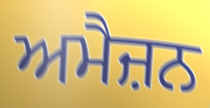
ਅਮੈਜ਼ਨ